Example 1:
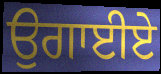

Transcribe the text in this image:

ਉਗਾਈਏ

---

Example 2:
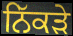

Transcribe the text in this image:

ਨਿੱਕੜੇ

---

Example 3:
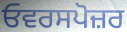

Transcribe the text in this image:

ਓਵਰਸਪੋਜ਼ਰ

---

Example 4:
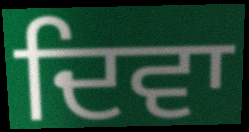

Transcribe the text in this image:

ਦਿਵਾ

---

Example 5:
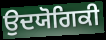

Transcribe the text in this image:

ਉਦਯੋਗਿਕੀ